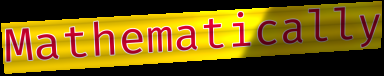
Mathematically